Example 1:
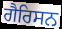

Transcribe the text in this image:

ਗੈਰਿਸਨ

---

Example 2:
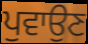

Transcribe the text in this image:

ਪੁਵਾਉਣ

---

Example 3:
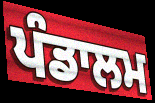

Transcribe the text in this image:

ਪੰਡਾਲਮ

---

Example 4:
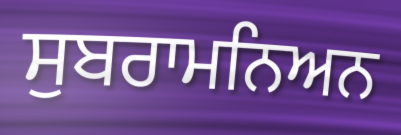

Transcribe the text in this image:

ਸੁਬਰਾਮਨਿਅਨ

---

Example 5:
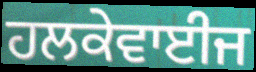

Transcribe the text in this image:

ਹਲਕੇਵਾਈਜ